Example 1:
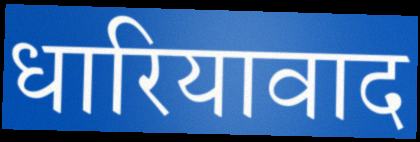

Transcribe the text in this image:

धारियावाद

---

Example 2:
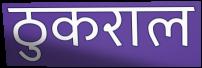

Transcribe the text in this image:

ठुकराल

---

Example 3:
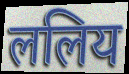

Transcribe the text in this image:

ललिय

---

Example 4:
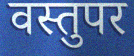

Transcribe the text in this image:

वस्तुपर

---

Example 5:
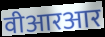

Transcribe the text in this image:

वीआरआर